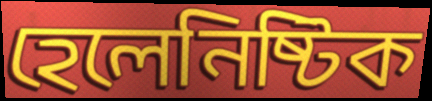
হেলেনিষ্টিক